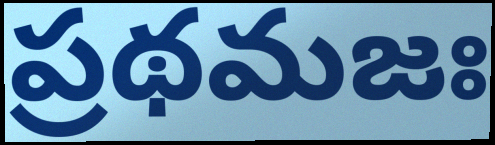
ప్రథమజః